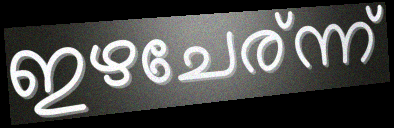
ഇഴചേര്ന്ന്